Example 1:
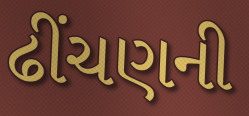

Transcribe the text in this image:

ઢીંચણની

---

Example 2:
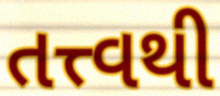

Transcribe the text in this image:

તત્ત્વથી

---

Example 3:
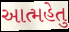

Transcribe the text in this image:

આત્મહેતુ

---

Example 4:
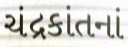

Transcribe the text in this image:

ચંદ્રકાંતનાં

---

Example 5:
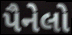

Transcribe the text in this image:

પૈનેલો